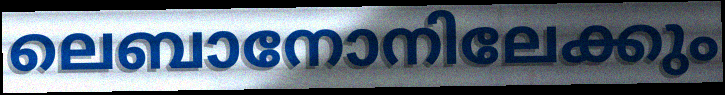
ലെബാനോനിലേക്കും